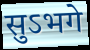
सुऽभगे